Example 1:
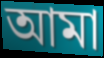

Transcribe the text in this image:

আমা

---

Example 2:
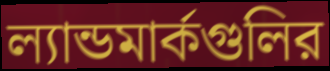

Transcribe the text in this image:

ল্যান্ডমার্কগুলির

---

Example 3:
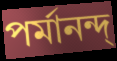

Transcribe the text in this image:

পর্মানন্দ্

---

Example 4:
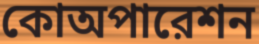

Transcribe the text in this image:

কোঅপারেশন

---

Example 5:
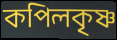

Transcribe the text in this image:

কপিলকৃষ্ণ